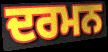
ਦਰਮਨ